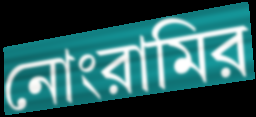
নোংরামির